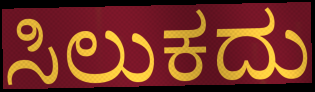
ಸಿಲುಕದು